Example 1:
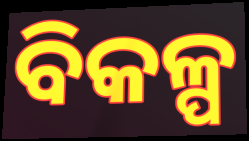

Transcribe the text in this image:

ବିକଳ୍ପ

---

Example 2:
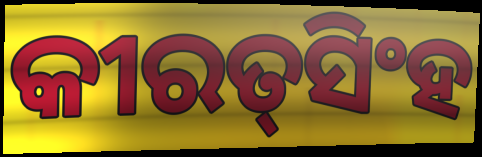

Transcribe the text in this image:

କୀରତ୍‍ସିଂହ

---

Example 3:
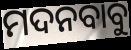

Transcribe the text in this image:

ମଦନବାବୁ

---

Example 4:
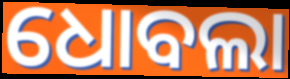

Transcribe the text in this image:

ଧୋବଲା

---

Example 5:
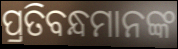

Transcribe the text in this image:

ପ୍ରତିବନ୍ଧମାନଙ୍କ